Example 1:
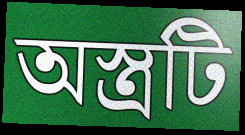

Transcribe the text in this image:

অস্ত্রটি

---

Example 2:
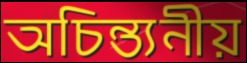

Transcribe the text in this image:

অচিন্ত্যনীয়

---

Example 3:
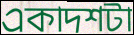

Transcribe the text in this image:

একাদশটা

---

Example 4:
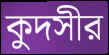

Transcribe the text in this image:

কুদসীর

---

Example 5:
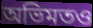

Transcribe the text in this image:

অভিমতও